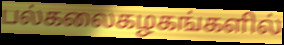
பல்கலைகழகங்களில்